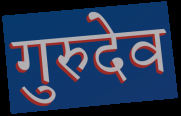
गुरुदेव